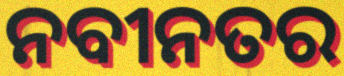
ନବୀନତର